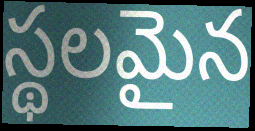
స్థలమైన